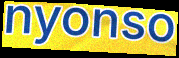
nyonso